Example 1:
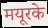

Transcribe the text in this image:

मयूरके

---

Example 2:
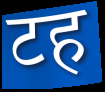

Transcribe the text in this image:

टह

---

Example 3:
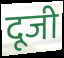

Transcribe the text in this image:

दूजी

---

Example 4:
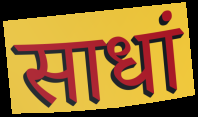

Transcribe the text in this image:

साधां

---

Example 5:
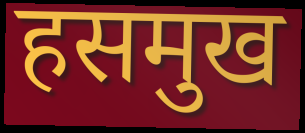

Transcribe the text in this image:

हसमुख